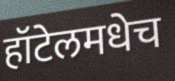
हॉटेलमधेच